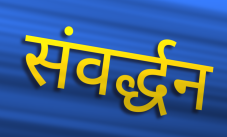
संवर्द्धन